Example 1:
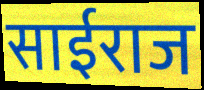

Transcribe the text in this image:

साईराज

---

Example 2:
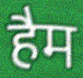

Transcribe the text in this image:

हैम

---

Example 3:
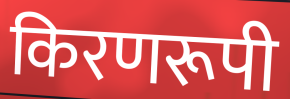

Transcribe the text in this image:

किरणरूपी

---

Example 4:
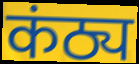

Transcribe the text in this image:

कंठ्य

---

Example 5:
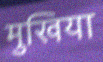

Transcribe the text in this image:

मुखिया